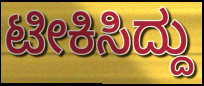
ಟೀಕಿಸಿದ್ದು